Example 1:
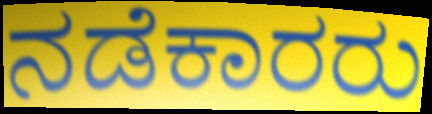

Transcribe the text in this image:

ನಡೆಕಾರರು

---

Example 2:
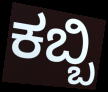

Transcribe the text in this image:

ಕಬ್ಬಿ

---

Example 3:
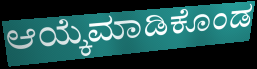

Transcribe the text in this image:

ಆಯ್ಕೆಮಾಡಿಕೊಂಡ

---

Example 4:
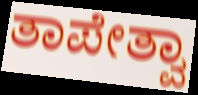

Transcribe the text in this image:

ತಾಪೇತ್ವಾ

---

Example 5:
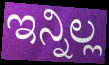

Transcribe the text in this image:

ಇನ್ನಿಲ್ಲ